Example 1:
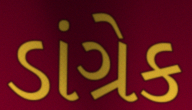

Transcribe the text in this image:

ડાંગ્રેક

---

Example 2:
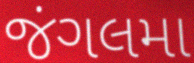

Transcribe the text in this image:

જંગલમા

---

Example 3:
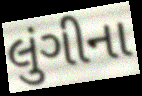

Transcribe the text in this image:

લુંગીના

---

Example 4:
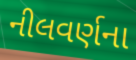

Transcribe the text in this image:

નીલવર્ણના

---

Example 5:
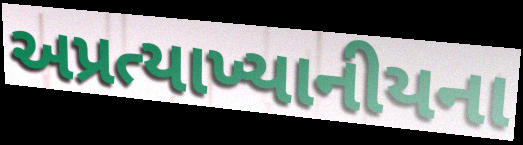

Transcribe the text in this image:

અપ્રત્યાખ્યાનીયના